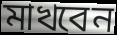
মাখবেন